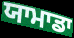
ਯਾਮਾਡਾ